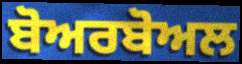
ਬੋਅਰਬੋਅਲ